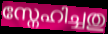
സ്നേഹിച്ചതു